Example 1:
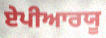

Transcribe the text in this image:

ਏਪੀਆਰਯੂ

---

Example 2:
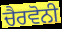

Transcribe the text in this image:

ਚੈਰਵੋਨੀ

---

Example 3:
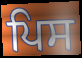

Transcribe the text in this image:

ਪਿਸ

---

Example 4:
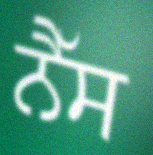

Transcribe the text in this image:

ਨੈੱਸ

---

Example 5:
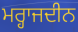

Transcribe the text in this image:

ਮਰ੍ਹਾਜਦੀਨ